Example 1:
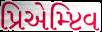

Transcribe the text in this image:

પ્રિએમ્પ્ટિવ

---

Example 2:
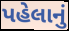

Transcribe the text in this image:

પહેલાનું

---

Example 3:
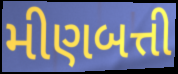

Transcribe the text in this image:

મીણબત્તી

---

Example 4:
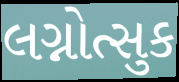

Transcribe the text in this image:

લગ્નોત્સુક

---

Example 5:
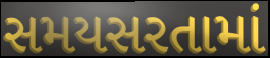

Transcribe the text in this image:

સમયસરતામાં